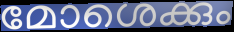
മോശെക്കും